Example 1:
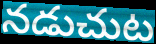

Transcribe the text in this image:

నడుచుట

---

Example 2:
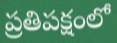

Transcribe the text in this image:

ప్రతిపక్షంలో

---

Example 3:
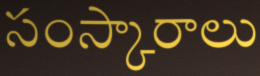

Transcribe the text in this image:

సంస్కారాలు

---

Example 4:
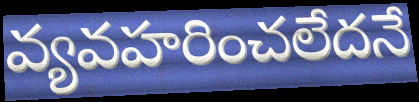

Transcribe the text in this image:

వ్యవహరించలేదనే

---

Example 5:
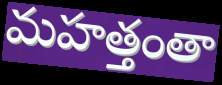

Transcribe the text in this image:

మహత్తంతా